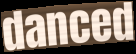
danced